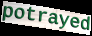
potrayed